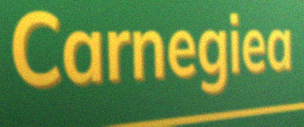
Carnegiea